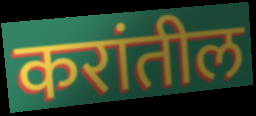
करांतील